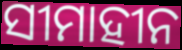
ସୀମାହୀନ